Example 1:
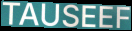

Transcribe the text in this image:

TAUSEEF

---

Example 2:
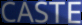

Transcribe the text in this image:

CASTE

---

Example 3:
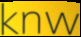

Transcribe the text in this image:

knw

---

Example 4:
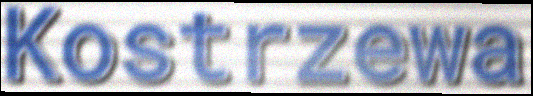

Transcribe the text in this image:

Kostrzewa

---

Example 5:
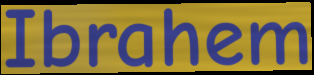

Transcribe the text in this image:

Ibrahem